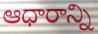
ఆధారాన్ని